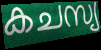
കചസ്യ